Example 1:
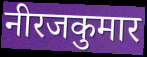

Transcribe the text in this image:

नीरजकुमार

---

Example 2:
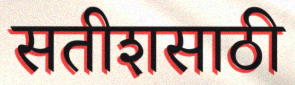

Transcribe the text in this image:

सतीशसाठी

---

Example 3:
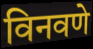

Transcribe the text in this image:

विनवणे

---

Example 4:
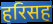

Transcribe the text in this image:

हरिसह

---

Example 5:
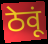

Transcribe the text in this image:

ठेवूं